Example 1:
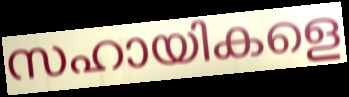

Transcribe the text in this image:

സഹായികളെ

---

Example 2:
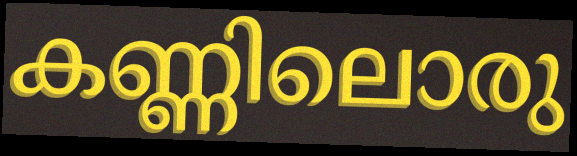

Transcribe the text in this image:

കണ്ണിലൊരു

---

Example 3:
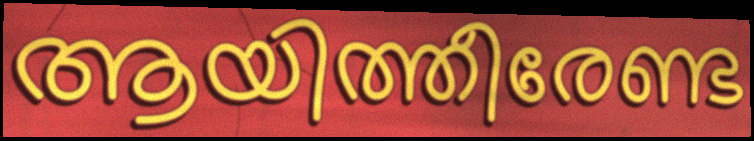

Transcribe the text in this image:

ആയിത്തീരേണ്ട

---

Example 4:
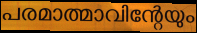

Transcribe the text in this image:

പരമാത്മാവിന്റേയും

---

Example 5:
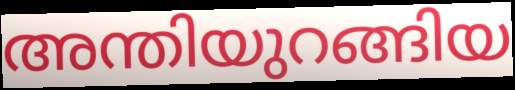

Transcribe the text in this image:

അന്തിയുറങ്ങിയ